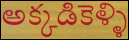
అక్కడికెళ్ళి